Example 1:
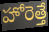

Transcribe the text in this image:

హోరెత్తే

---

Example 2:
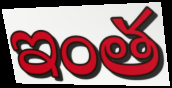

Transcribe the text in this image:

ఇంత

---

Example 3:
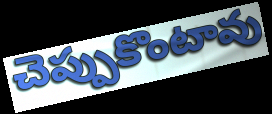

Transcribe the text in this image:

చెప్పుకొంటావు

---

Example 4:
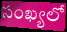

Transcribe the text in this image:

సంఖ్యలో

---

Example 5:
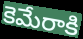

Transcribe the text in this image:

కెమేరాకి